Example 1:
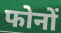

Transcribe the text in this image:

फोनों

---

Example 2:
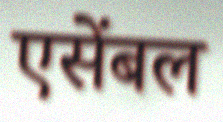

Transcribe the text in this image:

एसेंबल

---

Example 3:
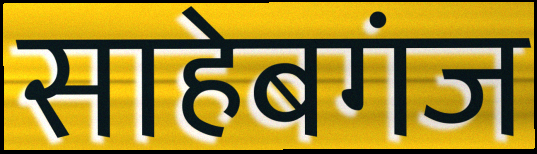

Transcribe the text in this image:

साहेबगंज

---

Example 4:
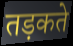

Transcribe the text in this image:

तड़कते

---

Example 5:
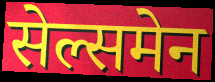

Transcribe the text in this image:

सेल्समेन